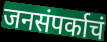
जनसंपर्काचं